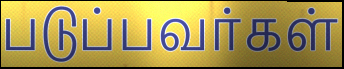
படுப்பவர்கள்